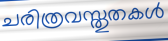
ചരിത്രവസ്തുതകൾ